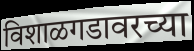
विशाळगडावरच्या